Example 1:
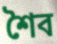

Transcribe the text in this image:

শৈব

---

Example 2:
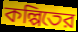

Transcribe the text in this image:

কল্পিতের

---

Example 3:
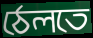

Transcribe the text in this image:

ঠেলতে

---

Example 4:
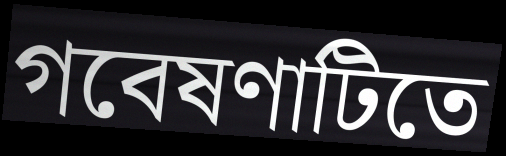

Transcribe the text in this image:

গবেষণাটিতে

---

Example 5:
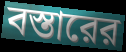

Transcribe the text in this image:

বস্তারের